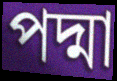
পদ্মা